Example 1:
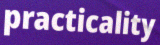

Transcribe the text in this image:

practicality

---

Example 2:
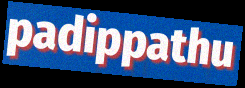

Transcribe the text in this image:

padippathu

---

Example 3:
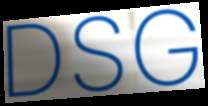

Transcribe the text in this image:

DSG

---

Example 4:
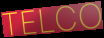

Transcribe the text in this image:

TELCO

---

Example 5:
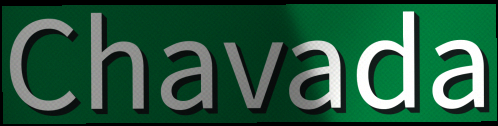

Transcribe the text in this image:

Chavada